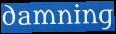
damning